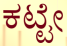
ಕಟ್ಟೇ